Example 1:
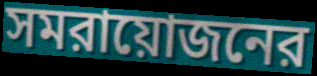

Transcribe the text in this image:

সমরায়োজনের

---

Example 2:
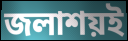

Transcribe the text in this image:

জলাশয়ই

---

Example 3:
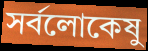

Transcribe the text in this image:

সর্বলোকেষু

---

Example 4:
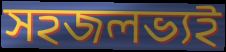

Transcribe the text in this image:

সহজলভ্যই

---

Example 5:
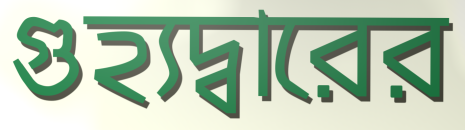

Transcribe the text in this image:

গুহ্যদ্বারের